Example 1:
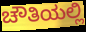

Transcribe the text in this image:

ಚೌತಿಯಲ್ಲಿ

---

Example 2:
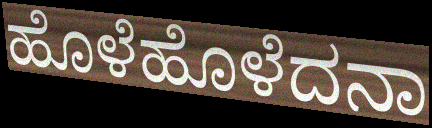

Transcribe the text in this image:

ಹೊಳೆಹೊಳೆದನಾ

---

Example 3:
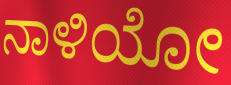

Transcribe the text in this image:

ನಾಳಿಯೋ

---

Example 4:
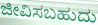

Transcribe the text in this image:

ಜೀವಿಸಬಹುದು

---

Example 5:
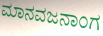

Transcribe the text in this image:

ಮಾನವಜನಾಂಗ